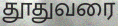
தூதுவரை